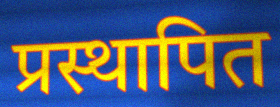
प्रस्थापित